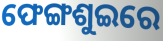
ଫେଙ୍ଗଶୁଇରେ